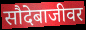
सौदेबाजीवर